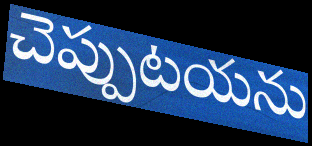
చెప్పుటయను